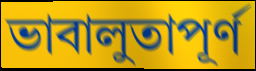
ভাবালুতাপূর্ণ